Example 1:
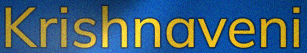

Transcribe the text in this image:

Krishnaveni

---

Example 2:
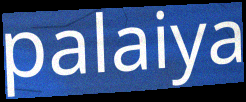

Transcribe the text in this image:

palaiya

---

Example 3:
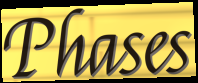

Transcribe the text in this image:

Phases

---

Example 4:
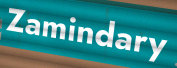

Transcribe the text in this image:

Zamindary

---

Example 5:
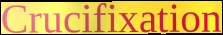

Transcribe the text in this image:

Crucifixation